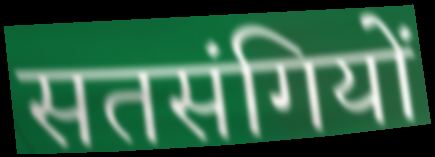
सतसंगियों